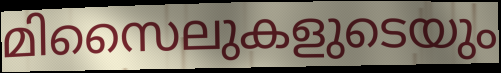
മിസൈലുകളുടെയും